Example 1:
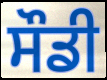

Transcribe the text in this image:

ਸੌਡੀ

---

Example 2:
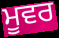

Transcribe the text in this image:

ਮੂਵਰ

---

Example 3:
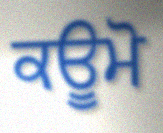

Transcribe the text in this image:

ਕਊਮੋ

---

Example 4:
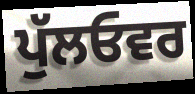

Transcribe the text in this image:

ਪੁੱਲਓਵਰ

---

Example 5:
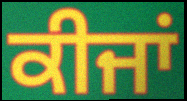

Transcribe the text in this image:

ਕੀਜਾਂ